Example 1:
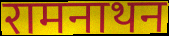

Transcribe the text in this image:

रामनाथन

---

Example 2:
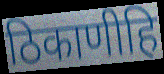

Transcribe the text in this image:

ठिकाणीहि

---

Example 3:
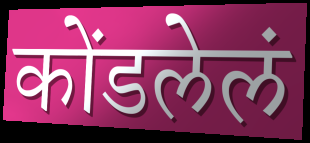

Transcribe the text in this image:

कोंडलेलं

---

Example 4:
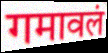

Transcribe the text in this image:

गमावलं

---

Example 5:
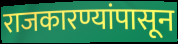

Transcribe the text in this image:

राजकारण्यांपासून